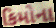
કિમોના